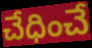
చేధించే